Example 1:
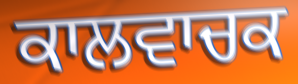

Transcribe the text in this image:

ਕਾਲਵਾਚਕ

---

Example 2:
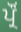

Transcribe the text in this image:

ਪ੍ਰੌਂ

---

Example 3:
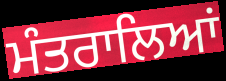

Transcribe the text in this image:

ਮੰਤਰਾਲਿਆਂ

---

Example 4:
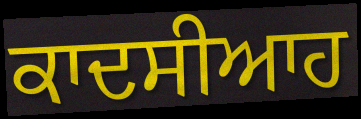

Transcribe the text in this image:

ਕਾਦਸੀਆਹ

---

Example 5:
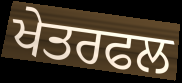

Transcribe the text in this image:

ਖੇਤਰਫਲ